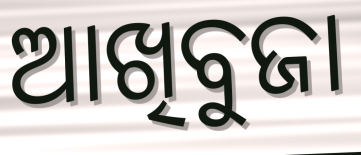
ଆଖିବୁଜା